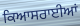
ਕਿਆਸਰਾਈਆਂ